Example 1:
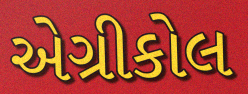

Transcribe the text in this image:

એગ્રીકોલ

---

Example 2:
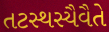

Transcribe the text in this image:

તટસ્થસ્યૈવૈતે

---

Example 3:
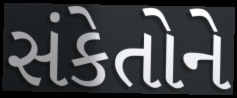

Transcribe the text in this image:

સંકેતોને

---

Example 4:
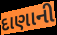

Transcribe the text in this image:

દાણાની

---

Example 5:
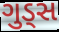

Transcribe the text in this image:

ગુડ્સ